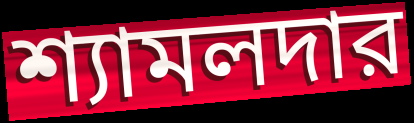
শ্যামলদার